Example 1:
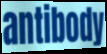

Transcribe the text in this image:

antibody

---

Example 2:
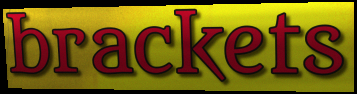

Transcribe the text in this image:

brackets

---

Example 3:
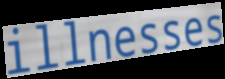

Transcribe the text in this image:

illnesses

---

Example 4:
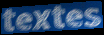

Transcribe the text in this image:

textes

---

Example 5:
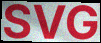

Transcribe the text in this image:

SVG